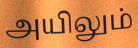
அயிலும்